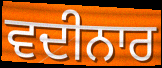
ਵਦੀਨਾਰ